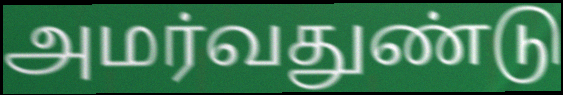
அமர்வதுண்டு